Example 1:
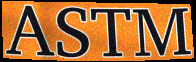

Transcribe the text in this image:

ASTM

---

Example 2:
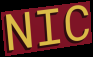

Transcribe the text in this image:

NIC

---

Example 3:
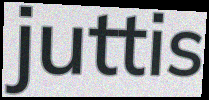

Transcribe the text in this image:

juttis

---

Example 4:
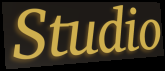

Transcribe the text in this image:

Studio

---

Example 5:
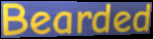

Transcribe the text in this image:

Bearded